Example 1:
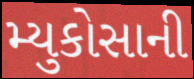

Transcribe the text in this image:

મ્યુકોસાની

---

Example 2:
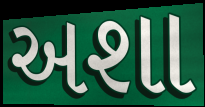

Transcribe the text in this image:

અશા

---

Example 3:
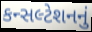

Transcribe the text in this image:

કન્સલ્ટેશનનું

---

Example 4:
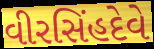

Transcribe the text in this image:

વીરસિંહદેવે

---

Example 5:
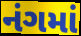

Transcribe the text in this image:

નંગમાં